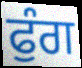
ਫੁੰਗ